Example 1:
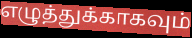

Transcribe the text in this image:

எழுத்துக்காகவும்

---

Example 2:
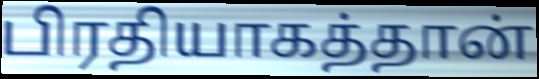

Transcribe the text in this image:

பிரதியாகத்தான்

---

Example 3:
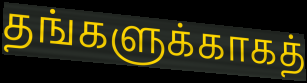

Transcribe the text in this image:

தங்களுக்காகத்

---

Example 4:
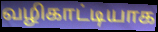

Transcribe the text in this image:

வழிகாட்டியாக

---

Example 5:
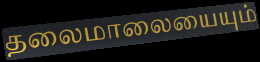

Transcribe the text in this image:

தலைமாலையையும்